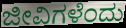
ಜೀವಿಗಳೆಂದು